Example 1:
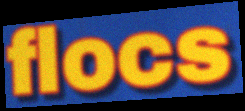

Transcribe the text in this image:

flocs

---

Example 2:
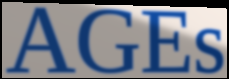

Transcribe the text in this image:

AGEs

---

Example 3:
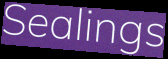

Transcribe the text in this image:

Sealings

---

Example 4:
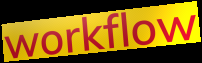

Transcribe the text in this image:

workflow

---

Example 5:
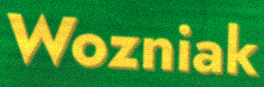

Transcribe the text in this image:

Wozniak